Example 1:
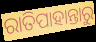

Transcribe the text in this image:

ରାତିପାହାନ୍ତାରୁ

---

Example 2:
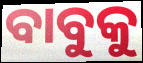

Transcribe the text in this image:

ବାବୁକୁ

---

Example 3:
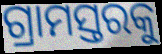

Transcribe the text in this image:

ଗ୍ରାମସ୍ତରକୁ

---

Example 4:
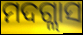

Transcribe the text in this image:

ମଦଗ୍ଲାସ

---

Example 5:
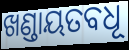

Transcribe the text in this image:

ଖଣ୍ଡାୟତବଧୂ